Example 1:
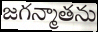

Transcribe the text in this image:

జగన్మాతను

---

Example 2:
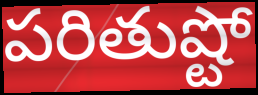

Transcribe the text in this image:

పరితుష్టో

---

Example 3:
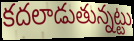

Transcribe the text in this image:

కదలాడుతున్నట్టు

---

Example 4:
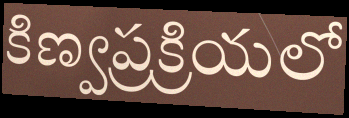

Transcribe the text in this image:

కిణ్వప్రక్రియలో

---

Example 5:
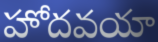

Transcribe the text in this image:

హోదవయా